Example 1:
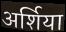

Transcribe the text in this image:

अर्शिया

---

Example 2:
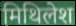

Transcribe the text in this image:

मिथिलेश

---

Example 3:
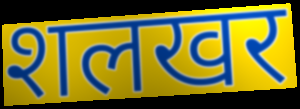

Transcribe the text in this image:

शलखर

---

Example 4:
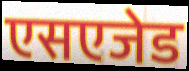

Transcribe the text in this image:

एसएजेड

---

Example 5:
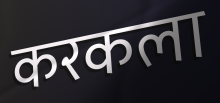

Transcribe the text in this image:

करकला